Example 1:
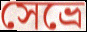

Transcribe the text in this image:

সেভ্রে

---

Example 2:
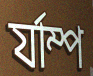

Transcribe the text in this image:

র্যাম্প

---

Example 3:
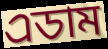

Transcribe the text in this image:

এডাম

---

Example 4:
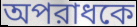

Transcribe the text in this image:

অপরাধকে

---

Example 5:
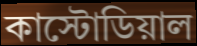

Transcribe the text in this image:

কাস্টোডিয়াল